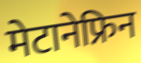
मेटानेफ्रिन